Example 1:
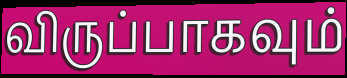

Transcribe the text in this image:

விருப்பாகவும்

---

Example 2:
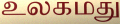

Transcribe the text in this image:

உலகமது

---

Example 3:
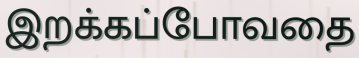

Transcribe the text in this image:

இறக்கப்போவதை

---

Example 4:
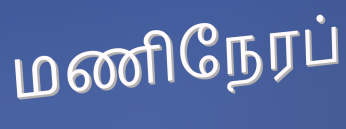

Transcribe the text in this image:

மணிநேரப்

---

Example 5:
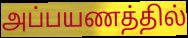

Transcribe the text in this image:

அப்பயணத்தில்